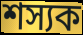
শস্যক